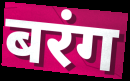
बरंग